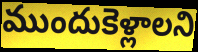
ముందుకెళ్లాలని